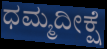
ಧಮ್ಮದೀಕ್ಷೆ